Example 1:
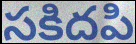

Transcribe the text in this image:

సకిదపి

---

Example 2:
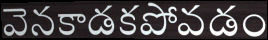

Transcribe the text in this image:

వెనకాడకపోవడం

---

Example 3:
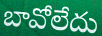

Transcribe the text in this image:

బావోలేదు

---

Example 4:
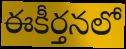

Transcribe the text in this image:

ఈకీర్తనలో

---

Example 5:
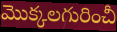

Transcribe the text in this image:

మొక్కలగురించీ